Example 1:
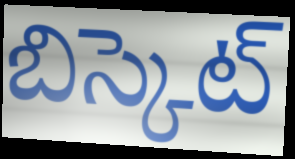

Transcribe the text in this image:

బిస్కెట్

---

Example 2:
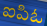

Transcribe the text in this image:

ఐపిఓ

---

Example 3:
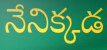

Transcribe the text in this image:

నేనిక్కడ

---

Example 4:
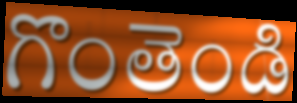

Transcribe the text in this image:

గొంతెండి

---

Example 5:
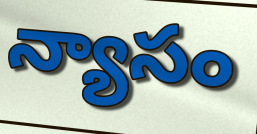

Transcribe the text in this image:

న్యాసం